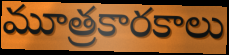
మూత్రకారకాలు